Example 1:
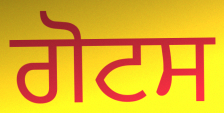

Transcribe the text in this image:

ਗੋਟਸ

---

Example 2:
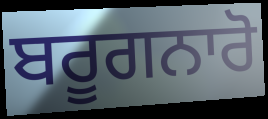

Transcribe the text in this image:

ਬਰੂਗਨਾਰੋ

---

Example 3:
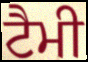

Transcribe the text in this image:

ਟੈਮੀ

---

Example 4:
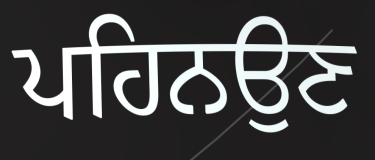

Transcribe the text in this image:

ਪਹਿਨਉਣ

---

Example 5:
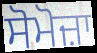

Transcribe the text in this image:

ਸੋਮੋਜ਼ਾ